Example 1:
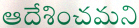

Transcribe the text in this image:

ఆదేశించమని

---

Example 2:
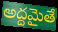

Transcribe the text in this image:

అద్దమైతే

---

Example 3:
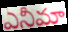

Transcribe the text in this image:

ఎనీమా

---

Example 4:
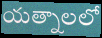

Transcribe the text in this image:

యత్నాలలో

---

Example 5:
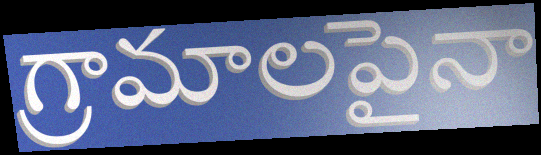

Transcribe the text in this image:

గ్రామాలపైనా